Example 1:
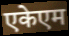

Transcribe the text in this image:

एकेएम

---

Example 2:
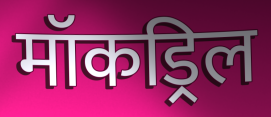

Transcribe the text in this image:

मॉकड्रिल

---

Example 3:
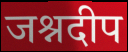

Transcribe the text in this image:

जश्नदीप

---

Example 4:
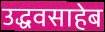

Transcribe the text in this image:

उद्धवसाहेब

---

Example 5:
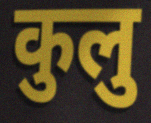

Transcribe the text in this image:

कुलु